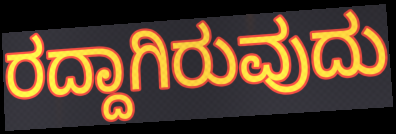
ರದ್ದಾಗಿರುವುದು